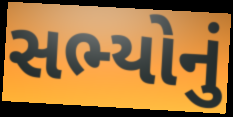
સભ્યોનું